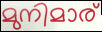
മുനിമാര്